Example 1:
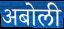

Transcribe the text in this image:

अबोली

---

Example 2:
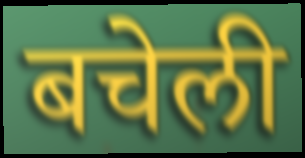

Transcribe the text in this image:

बचेली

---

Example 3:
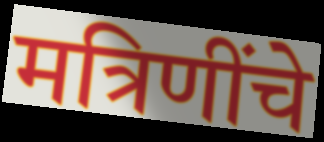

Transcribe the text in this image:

मत्रिणींचे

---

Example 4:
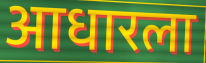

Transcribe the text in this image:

आधारला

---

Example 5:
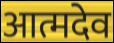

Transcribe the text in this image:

आत्मदेव